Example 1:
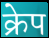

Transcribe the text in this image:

क्रेप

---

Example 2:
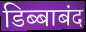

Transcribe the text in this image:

डिब्बाबंद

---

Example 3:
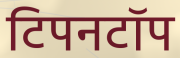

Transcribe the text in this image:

टिपनटॉप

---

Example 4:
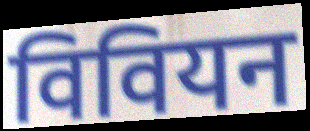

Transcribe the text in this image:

विवियन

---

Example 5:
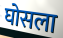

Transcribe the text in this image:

घोसला